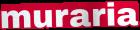
muraria